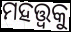
ମହତ୍ତ୍ଵକୁ